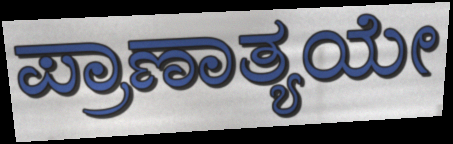
ಪ್ರಾಣಾತ್ಯಯೇ